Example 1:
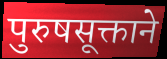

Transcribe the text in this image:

पुरुषसूक्ताने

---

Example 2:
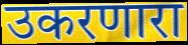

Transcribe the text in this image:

उकरणारा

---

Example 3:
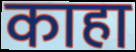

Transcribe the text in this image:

काहा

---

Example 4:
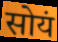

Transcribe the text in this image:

सोयं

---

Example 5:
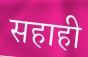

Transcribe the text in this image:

सहाही